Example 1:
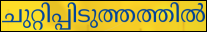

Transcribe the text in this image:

ചുറ്റിപ്പിടുത്തത്തിൽ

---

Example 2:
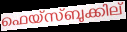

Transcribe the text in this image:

ഫെയ്സ്ബുക്കില്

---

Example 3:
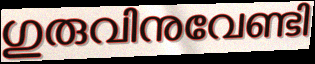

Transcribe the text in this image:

ഗുരുവിനുവേണ്ടി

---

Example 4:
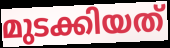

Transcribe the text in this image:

മുടക്കിയത്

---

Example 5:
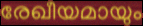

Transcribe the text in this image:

രേഖീയമായും